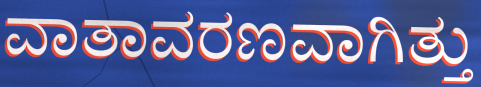
ವಾತಾವರಣವಾಗಿತ್ತು